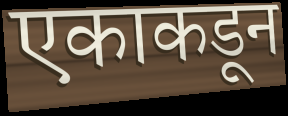
एकाकडून